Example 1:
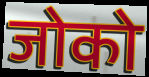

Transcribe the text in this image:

जोको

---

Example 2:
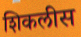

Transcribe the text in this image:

शिकलीस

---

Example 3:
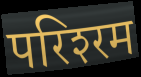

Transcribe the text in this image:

परिश्रम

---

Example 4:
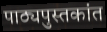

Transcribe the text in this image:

पाठ्यपुस्तकांत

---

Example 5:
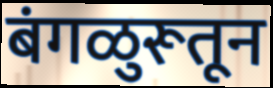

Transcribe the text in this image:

बंगळुरूतून